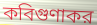
কবিগুণাকর